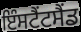
ਇੰਸਟੈਂਟਸੈਂਡ